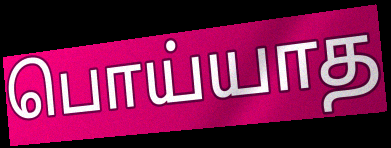
பொய்யாத